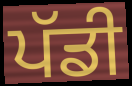
ਪੱਡੀ